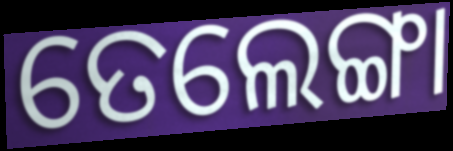
ତେଲେଙ୍ଗା